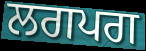
ਲਗਪਗ